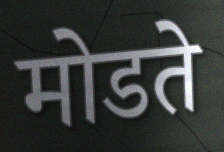
मोडते